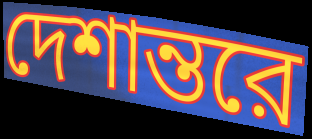
দেশান্তরে